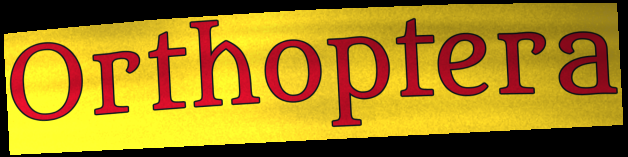
Orthoptera